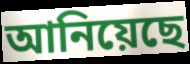
আনিয়েছে